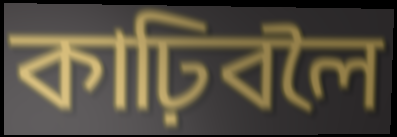
কাঢ়িবলৈ